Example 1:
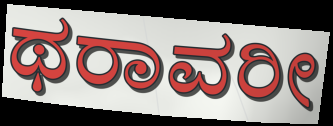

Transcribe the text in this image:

ಥರಾವರೀ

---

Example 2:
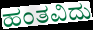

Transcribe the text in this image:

ಹಂತವಿದು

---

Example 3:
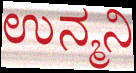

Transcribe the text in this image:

ಉನ್ಮನಿ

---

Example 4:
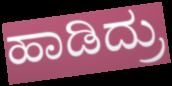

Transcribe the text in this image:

ಹಾಡಿದ್ರು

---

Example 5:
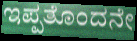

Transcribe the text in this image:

ಇಪ್ಪತೊಂದನೇ